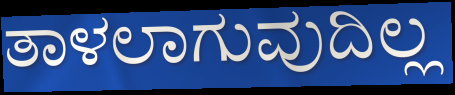
ತಾಳಲಾಗುವುದಿಲ್ಲ